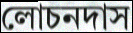
লোচনদাস